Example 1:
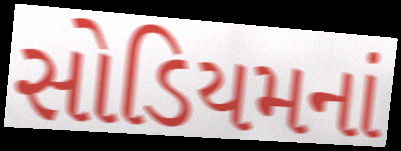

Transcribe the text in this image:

સોડિયમનાં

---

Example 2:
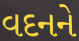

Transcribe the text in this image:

વદનને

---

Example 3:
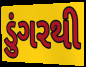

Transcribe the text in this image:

ડુંગરથી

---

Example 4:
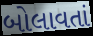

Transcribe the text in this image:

બોલાવતાં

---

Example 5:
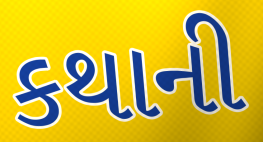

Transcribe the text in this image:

કથાની